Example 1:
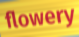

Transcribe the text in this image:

flowery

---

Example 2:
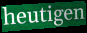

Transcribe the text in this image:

heutigen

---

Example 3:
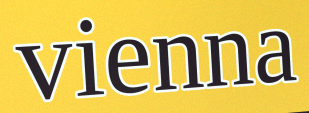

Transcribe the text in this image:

vienna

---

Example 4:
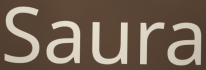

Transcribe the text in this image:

Saura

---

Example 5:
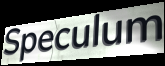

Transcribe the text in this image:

Speculum